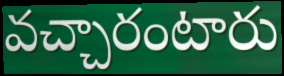
వచ్చారంటారు